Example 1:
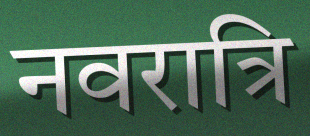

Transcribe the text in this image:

नवरात्रि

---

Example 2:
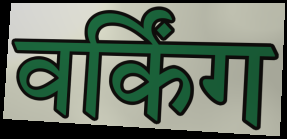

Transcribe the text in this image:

वर्किंग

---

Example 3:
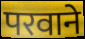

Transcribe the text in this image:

परवाने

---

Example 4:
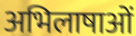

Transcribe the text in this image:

अभिलाषाओं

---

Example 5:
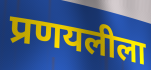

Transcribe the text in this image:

प्रणयलीला